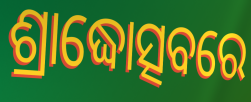
ଶ୍ରାଦ୍ଧୋତ୍ସବରେ